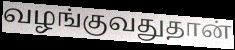
வழங்குவதுதான்